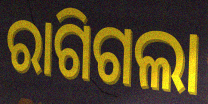
ରାଗିଗଲା